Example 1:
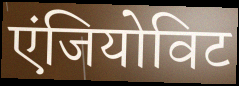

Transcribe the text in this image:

एंजियोविट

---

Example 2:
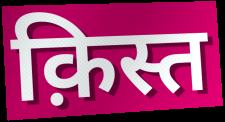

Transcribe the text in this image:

क़िस्त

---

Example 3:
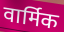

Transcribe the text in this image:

वार्मिक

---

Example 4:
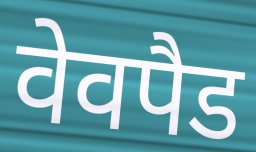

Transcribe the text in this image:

वेवपैड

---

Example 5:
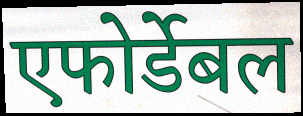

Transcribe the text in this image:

एफोर्डेबल